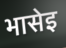
भासेइ